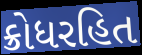
ક્રોધરહિત